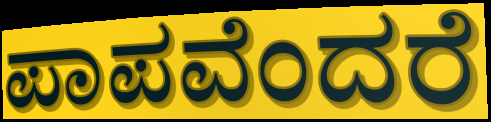
ಪಾಪವೆಂದರೆ